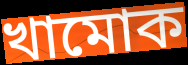
খামোক